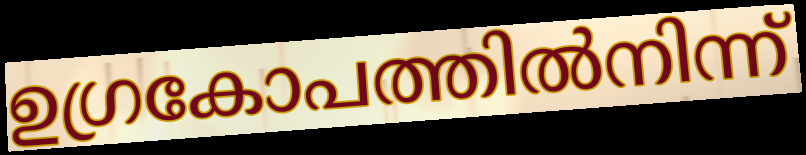
ഉഗ്രകോപത്തിൽനിന്ന്